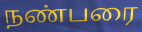
நண்பரை